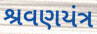
શ્રવણયંત્ર